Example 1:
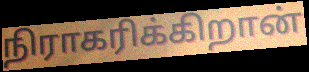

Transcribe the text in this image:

நிராகரிக்கிறான்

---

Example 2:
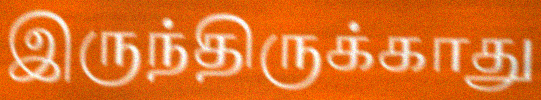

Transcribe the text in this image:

இருந்திருக்காது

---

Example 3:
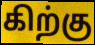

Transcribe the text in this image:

கிற்கு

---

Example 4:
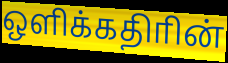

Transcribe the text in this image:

ஒளிக்கதிரின்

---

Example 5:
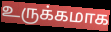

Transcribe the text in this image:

உருக்கமாக